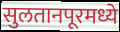
सुलतानपूरमध्ये